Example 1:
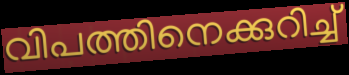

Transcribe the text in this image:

വിപത്തിനെക്കുറിച്ച്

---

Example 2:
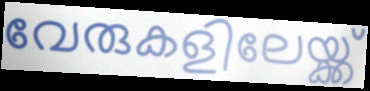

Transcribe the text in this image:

വേരുകളിലേയ്ക്ക്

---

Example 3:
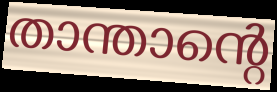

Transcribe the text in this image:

താന്താന്റെ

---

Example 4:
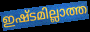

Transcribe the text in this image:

ഇഷ്ടമില്ലാത്ത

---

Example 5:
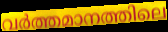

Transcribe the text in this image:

വർത്തമാനത്തിലെ